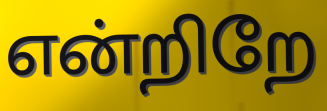
என்றிறே